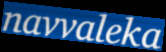
navvaleka